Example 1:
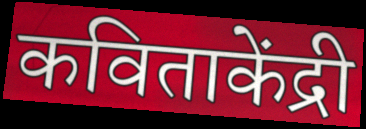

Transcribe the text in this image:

कविताकेंद्री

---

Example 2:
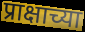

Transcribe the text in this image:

प्राक्षाच्या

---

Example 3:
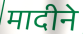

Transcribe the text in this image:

मादीने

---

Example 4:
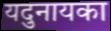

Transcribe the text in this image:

यदुनायका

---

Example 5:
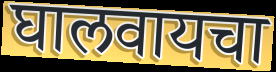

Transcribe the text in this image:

घालवायचा